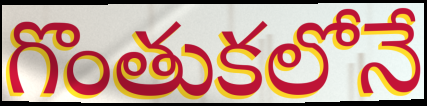
గొంతుకలోనే